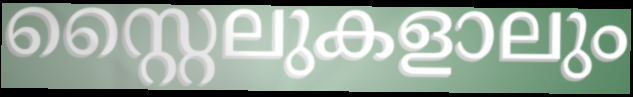
സ്റ്റൈലുകളാലും